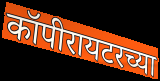
कॉपीरायटरच्या